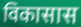
विकासास